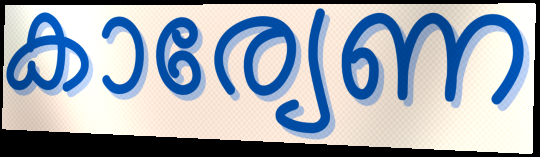
കാര്യേണ